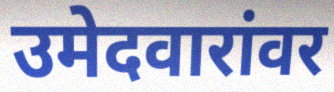
उमेदवारांवर